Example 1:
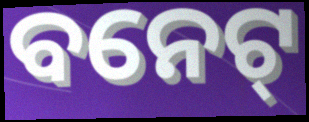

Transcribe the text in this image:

ବନେଟ୍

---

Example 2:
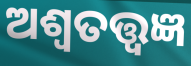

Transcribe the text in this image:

ଅଶ୍ୱତତ୍ତ୍ୱଜ୍ଞ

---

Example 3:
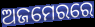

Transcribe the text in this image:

ଅଜମେରରେ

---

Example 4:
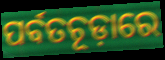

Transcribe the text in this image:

ପର୍ବତଚୂଡ଼ାରେ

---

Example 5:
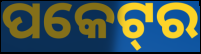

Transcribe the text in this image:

ପକେଟ୍‌ର